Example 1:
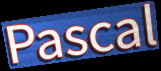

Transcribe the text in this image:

Pascal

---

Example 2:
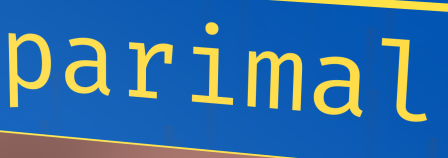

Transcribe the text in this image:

parimal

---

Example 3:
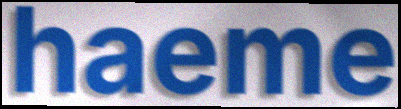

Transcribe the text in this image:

haeme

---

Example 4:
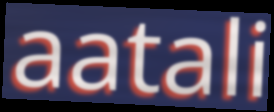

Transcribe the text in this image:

aatali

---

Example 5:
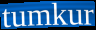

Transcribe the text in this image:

tumkur